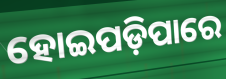
ହୋଇପଡ଼ିପାରେ